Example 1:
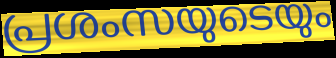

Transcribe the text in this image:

പ്രശംസയുടെയും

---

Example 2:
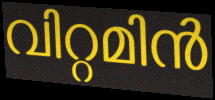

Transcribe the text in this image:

വിറ്റമിൻ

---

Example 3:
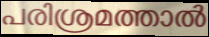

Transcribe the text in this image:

പരിശ്രമത്താൽ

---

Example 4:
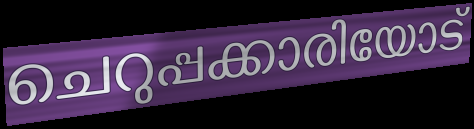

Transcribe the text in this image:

ചെറുപ്പക്കാരിയോട്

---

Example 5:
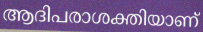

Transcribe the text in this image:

ആദിപരാശക്തിയാണ്